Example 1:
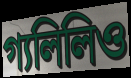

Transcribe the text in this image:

গ্যলিলিও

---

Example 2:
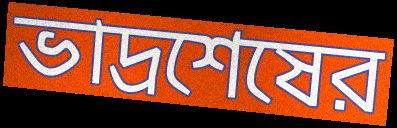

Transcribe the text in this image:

ভাদ্রশেষের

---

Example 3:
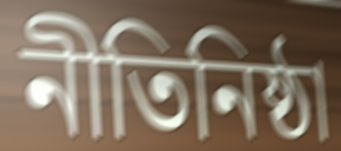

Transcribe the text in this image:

নীতিনিষ্ঠা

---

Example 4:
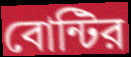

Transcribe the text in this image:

বোন্টির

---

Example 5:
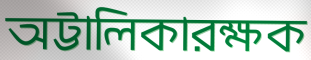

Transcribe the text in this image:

অট্টালিকারক্ষক